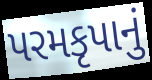
પરમકૃપાનું